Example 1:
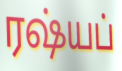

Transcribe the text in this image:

ரஷ்யப்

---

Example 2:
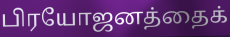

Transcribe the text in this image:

பிரயோஜனத்தைக்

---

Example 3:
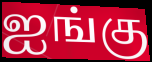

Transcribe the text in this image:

ஐங்கு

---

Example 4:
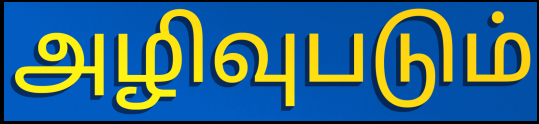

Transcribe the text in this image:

அழிவுபடும்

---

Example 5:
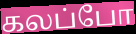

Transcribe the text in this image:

கலப்போ